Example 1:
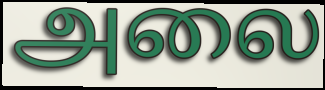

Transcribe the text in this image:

அலை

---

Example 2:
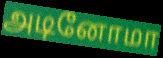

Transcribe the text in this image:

அடினோமா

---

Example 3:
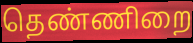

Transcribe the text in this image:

தெண்ணிறை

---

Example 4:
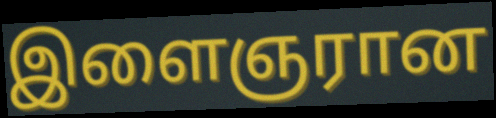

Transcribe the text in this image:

இளைஞரான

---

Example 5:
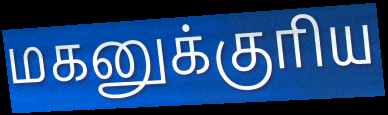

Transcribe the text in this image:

மகனுக்குரிய